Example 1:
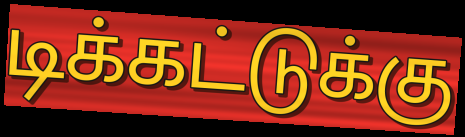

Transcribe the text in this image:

டிக்கட்டுக்கு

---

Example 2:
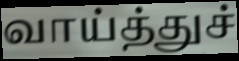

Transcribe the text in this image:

வாய்த்துச்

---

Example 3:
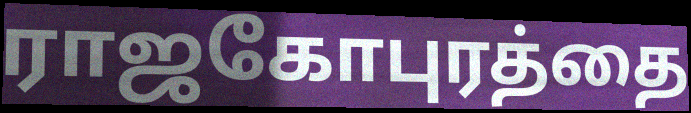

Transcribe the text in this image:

ராஜகோபுரத்தை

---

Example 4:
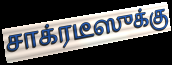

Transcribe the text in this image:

சாக்ரடீஸுக்கு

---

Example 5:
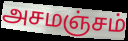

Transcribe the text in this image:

அசமஞ்சம்